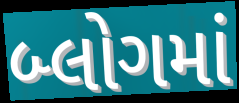
બ્લોગમાં